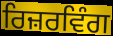
ਰਿਜ਼ਰਵਿੰਗ